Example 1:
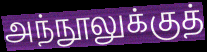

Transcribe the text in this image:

அந்நூலுக்குத்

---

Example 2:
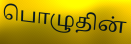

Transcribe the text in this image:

பொழுதின்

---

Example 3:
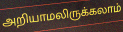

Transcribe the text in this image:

அறியாமலிருக்கலாம்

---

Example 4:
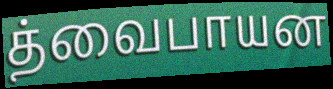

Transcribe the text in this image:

த்வைபாயன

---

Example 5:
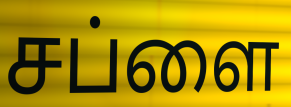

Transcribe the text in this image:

சப்ளை